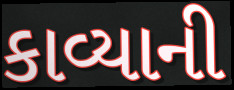
કાવ્યાની